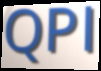
QPI